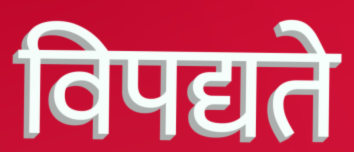
विपद्यते